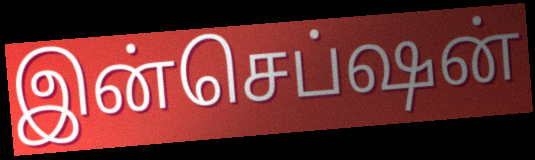
இன்செப்ஷன்